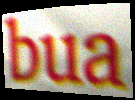
bua